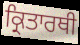
ਕ੍ਰਿਤਾਰਥੀ